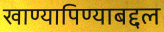
खाण्यापिण्याबद्दल